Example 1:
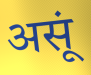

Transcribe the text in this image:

असूं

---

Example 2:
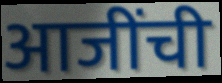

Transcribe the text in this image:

आजींची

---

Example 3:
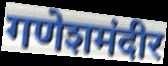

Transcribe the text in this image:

गणेशमंदीर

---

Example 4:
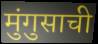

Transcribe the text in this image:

मुंगुसाची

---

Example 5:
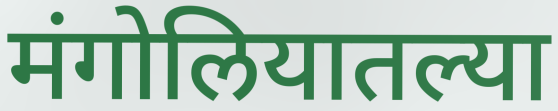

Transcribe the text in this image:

मंगोलियातल्या